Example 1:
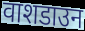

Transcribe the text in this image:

वाशडाउन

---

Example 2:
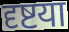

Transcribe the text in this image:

दृष्टया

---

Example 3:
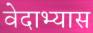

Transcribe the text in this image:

वेदाभ्यास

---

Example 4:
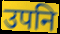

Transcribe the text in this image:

उपनि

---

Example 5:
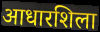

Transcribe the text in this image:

आधारशिला